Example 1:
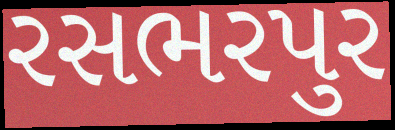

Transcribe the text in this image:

રસભરપુર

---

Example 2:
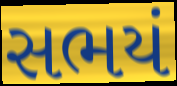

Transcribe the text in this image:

સભયં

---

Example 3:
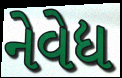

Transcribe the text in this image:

નેવેદ્ય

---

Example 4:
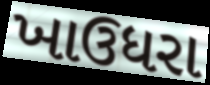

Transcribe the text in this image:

ખાઉધરા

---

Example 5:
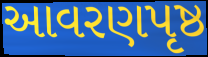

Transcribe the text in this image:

આવરણપૃષ્ઠ